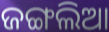
ଜଙ୍ଗଲିଆ